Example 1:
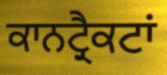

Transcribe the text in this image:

ਕਾਨਟ੍ਰੈਕਟਾਂ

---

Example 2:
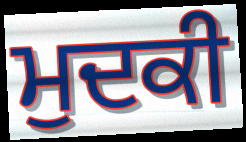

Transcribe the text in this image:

ਮੁਦਕੀ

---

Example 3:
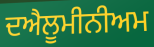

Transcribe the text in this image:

ਦਐਲੂਮੀਨੀਅਮ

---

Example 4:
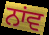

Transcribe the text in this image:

ਨਾਂਵ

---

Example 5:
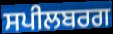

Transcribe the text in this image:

ਸਪੀਲਬਰਗ